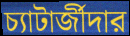
চ্যাটার্জীদার